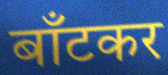
बाँटकर